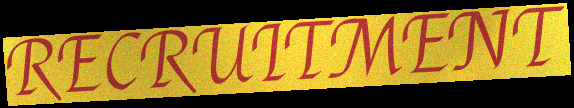
RECRUITMENT